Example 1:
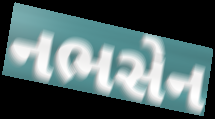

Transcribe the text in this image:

નભસેન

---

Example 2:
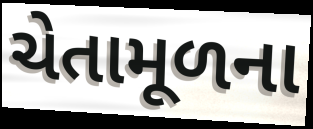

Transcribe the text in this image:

ચેતામૂળના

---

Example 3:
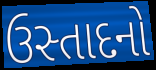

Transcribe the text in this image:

ઉસ્તાદનો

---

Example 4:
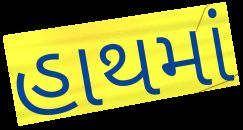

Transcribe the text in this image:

હાથમાં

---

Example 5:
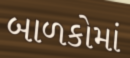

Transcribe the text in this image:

બાળકોમાં